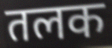
तलक